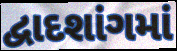
દ્વાદશાંગમાં